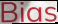
Bias